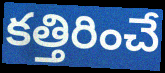
కత్తిరించే